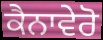
ਕੈਨਾਵੇਰੋ